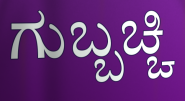
ಗುಬ್ಬಚ್ಚಿ